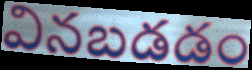
వినబడడం